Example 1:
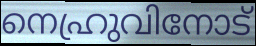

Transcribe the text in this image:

നെഹ്രുവിനോട്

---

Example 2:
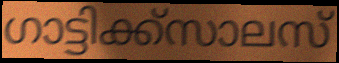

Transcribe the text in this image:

ഗാട്ടിക്ക്സാലസ്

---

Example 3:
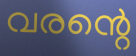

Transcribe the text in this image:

വരന്റെ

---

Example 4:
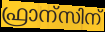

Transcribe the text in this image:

ഫ്രാന്സിന്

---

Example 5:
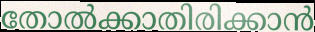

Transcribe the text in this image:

തോൽക്കാതിരിക്കാൻ